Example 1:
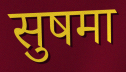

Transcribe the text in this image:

सुषमा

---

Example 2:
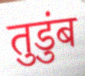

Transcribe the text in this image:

तुडुंब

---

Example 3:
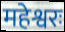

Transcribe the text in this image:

महेश्वरः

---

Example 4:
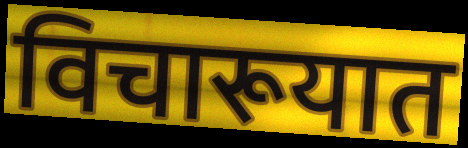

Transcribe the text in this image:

विचारूयात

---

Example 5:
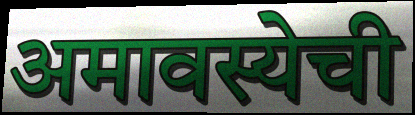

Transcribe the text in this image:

अमावस्येची